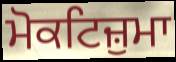
ਮੋਕਟਿਜ਼ੁਮਾ